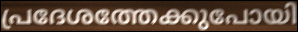
പ്രദേശത്തേക്കുപോയി